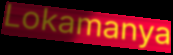
Lokamanya